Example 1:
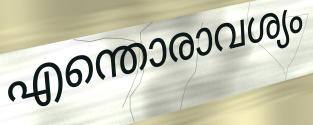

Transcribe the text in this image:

എന്തൊരാവശ്യം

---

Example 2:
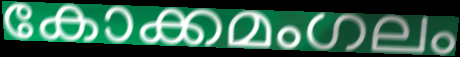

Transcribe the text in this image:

കോക്കമംഗലം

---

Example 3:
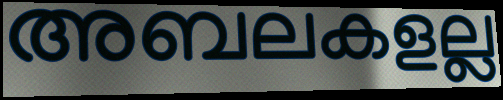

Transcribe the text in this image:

അബലകളല്ല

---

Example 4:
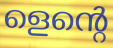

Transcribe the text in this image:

ളെന്റെ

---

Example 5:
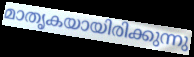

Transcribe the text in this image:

മാതൃകയായിരിക്കുന്നു